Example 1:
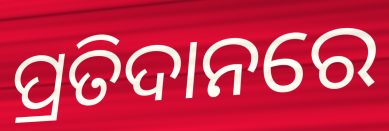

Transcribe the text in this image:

ପ୍ରତିଦାନରେ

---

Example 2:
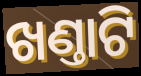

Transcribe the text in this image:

ଖଣ୍ତାଟି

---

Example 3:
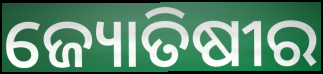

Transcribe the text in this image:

ଜ୍ୟୋତିଷୀର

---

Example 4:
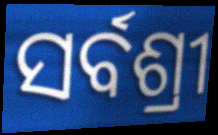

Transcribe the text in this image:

ସର୍ବଶ୍ରୀ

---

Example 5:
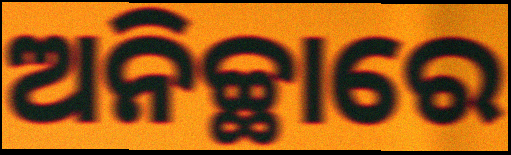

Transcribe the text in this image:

ଅନିଚ୍ଛାରେ